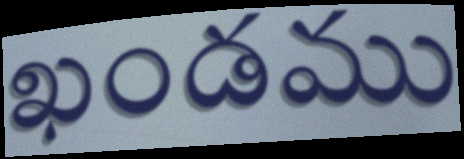
ఖండము